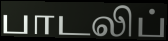
பாடலிப்